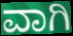
ವಾಗಿ